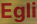
Egli